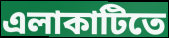
এলাকাটিতে